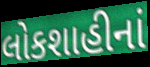
લોકશાહીનાં